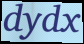
dydx